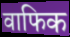
वाफिक